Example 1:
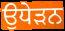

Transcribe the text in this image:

ਉਧੇੜਨ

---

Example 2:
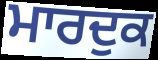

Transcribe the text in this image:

ਮਾਰਦੁਕ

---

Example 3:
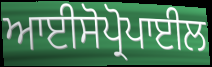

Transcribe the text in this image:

ਆਈਸੋਪ੍ਰੋਪਾਈਲ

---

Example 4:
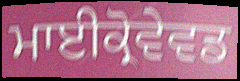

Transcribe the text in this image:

ਮਾਈਕ੍ਰੋਵੇਵਡ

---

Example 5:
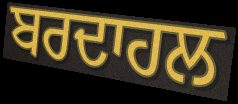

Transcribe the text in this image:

ਬਰਦਾਹਲ